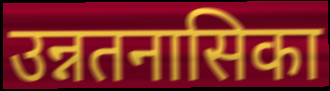
उन्नतनासिका